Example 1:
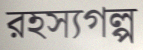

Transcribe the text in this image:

রহস্যগল্প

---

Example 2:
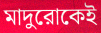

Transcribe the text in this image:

মাদুরোকেই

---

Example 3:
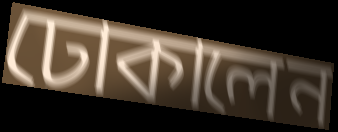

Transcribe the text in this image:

ঢোকালেন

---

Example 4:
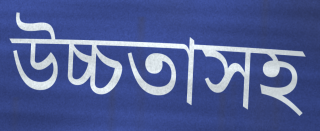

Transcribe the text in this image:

উচ্চতাসহ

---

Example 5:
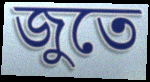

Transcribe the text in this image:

জুতে